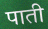
पाती